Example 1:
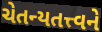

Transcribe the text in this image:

ચેતન્યતત્ત્વને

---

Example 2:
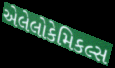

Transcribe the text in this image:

એલેલોકેમિકલ્સ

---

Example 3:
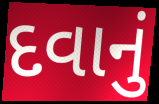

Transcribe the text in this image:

દવાનું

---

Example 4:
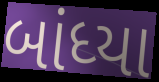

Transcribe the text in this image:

બાંધ્યા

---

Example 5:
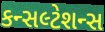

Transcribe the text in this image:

કન્સલ્ટેશન્સ